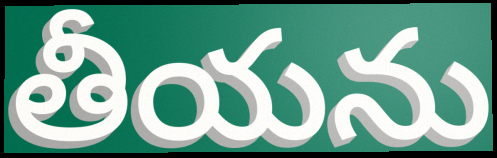
తీయను